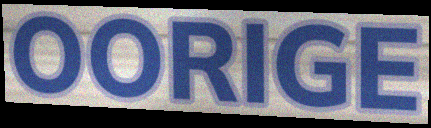
OORIGE